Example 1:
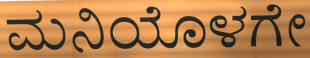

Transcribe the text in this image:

ಮನಿಯೊಳಗೇ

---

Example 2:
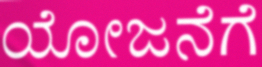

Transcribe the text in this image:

ಯೋಜನೆಗೆ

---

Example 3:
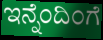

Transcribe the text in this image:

ಇನ್ನೆಂದಿಂಗೆ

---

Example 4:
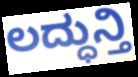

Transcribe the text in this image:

ಲದ್ಧುನ್ತಿ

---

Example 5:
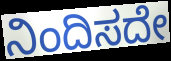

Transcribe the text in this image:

ನಿಂದಿಸದೇ